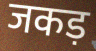
जकड़